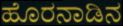
ಹೊರನಾಡಿನ